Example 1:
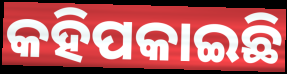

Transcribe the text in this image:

କହିପକାଇଛି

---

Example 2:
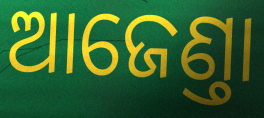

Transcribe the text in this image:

ଆଜେଣ୍ତା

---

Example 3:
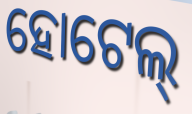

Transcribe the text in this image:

ହୋଟେଲ୍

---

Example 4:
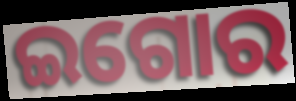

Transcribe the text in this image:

ଇଗୋର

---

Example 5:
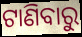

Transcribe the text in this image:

ଟାଣିବାରୁ